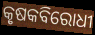
କୃଷକବିରୋଧୀ